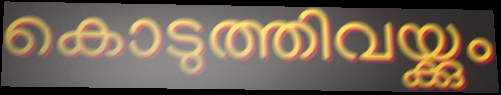
കൊടുത്തിവയ്ക്കും